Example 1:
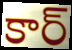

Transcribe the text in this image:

కార్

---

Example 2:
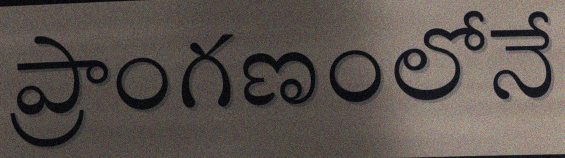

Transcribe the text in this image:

ప్రాంగణంలోనే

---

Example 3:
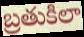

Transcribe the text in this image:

బ్రతుకిలా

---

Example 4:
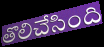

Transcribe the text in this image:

తొలిచేసింది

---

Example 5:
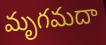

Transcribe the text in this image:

మృగమదా